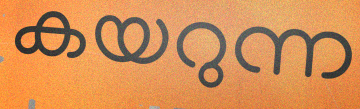
കയറുന്ന